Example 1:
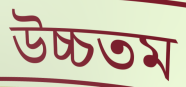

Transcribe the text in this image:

উচ্চতম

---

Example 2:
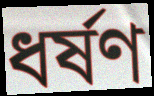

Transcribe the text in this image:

ধৰ্ষণ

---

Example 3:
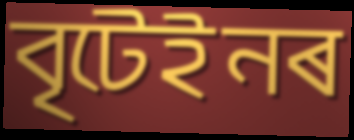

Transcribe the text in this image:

বৃটেইনৰ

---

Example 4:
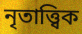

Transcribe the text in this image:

নৃতাত্ত্বিক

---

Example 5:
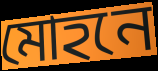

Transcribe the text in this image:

মোহনে